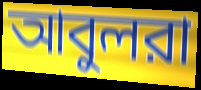
আবুলরা